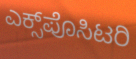
ಎಕ್ಸ್‌ಪೊಸಿಟರಿ